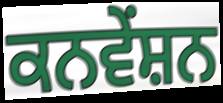
ਕਨਵੇਂਸ਼ਨ